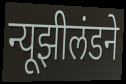
न्यूझीलंडने